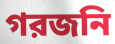
গরজনি